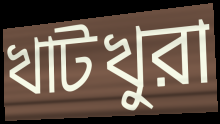
খাটখুরা